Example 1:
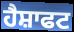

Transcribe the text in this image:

ਹੈਸ਼ਾਫਟ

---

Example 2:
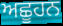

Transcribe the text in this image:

ਅਛੂਹਨ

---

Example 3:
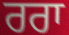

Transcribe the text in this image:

ਰਰਾ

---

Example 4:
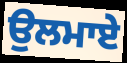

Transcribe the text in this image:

ਉਲਮਾਏ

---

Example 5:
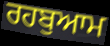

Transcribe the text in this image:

ਰਹਬੁਆਮ